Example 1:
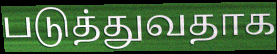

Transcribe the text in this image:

படுத்துவதாக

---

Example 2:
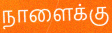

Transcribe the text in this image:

நாளைக்கு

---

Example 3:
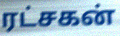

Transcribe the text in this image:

ரட்சகன்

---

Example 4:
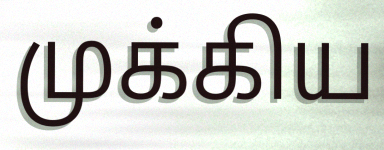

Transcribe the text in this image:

முக்கிய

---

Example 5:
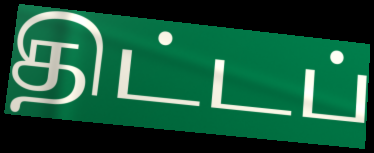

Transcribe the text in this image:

திட்டப்